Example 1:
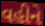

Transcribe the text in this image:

વહીને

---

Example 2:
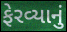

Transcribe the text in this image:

ફેરવ્યાનું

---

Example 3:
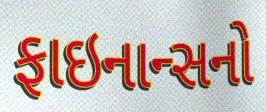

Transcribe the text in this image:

ફાઇનાન્સનો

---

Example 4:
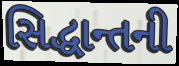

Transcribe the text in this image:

સિદ્ધાન્તની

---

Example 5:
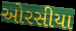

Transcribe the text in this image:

ઓરસીયા